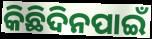
କିଛିଦିନପାଇଁ